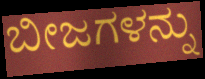
ಬೀಜಗಳನ್ನು